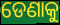
ଡେଣାକୁ